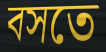
বসতে